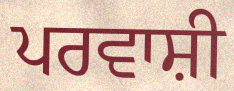
ਪਰਵਾਸ਼ੀ